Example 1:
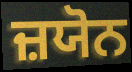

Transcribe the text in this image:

ਜ਼ਯੋਨ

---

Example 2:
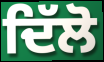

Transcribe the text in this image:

ਦਿੱਲੋ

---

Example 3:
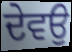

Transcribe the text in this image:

ਦੇਵਉ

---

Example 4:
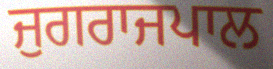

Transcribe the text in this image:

ਜੁਗਰਾਜਪਾਲ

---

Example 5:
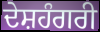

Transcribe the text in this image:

ਦੇਸ਼ਹੰਗਰੀ